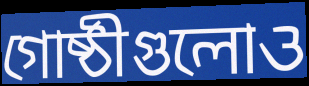
গোষ্ঠীগুলোও